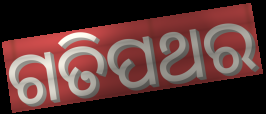
ଗତିପଥର